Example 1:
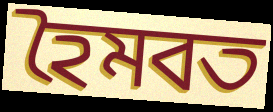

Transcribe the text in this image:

হৈমবত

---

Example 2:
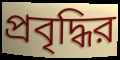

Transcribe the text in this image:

প্রবৃদ্ধির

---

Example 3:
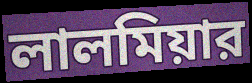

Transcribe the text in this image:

লালমিয়ার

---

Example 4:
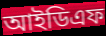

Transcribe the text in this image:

আইডিএফ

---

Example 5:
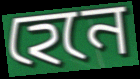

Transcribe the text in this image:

হেনে